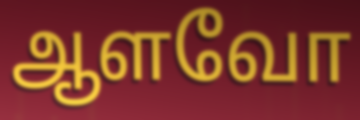
ஆளவோ